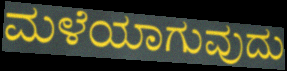
ಮಳೆಯಾಗುವುದು